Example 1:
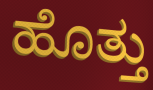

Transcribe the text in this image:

ಹೊತ್ತು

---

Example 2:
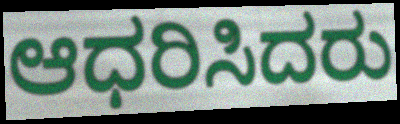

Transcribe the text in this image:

ಆಧರಿಸಿದರು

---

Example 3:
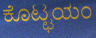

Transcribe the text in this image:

ಕೊಟ್ಟಯಂ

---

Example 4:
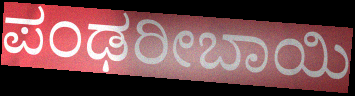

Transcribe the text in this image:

ಪಂಢರೀಬಾಯಿ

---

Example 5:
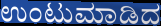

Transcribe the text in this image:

ಉಂಟುಮಾಡಿದ